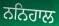
ਨਨਿਹਾਲ